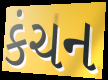
કંચન